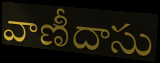
వాణీదాసు